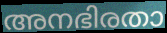
അനഭിരതാ